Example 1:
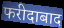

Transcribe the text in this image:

फरीदाबाद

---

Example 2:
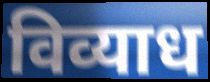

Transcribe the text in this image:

विव्याध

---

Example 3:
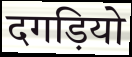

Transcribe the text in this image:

दगड़ियो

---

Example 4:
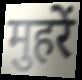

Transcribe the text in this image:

मुहरें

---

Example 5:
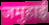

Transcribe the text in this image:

जमुहाई